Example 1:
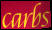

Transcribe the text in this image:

carbs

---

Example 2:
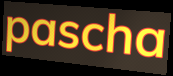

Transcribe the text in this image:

pascha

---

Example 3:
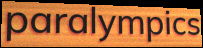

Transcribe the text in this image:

paralympics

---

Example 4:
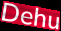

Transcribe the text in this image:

Dehu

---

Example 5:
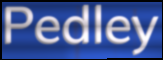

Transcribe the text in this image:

Pedley